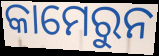
କାମେରୁନ